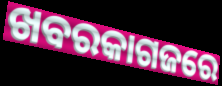
ଖବରକାଗଜରେ